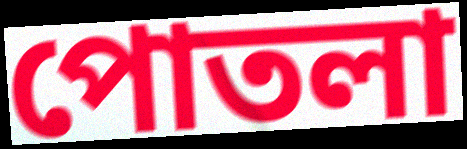
পোতলা